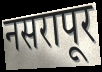
नसरापूर